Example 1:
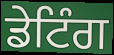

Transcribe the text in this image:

ਡੇਟਿੰਗ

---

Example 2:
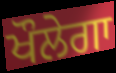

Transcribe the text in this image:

ਖੌਲੇਗਾ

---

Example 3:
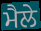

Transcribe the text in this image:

ਮੈਲੇ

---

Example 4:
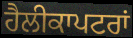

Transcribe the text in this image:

ਹੈਲੀਕਾਪਟਰਾਂ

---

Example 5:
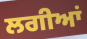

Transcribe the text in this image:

ਲਗੀਆਂ